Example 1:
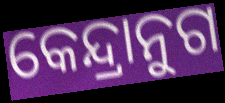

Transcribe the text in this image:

କେନ୍ଦ୍ରାନୁଗ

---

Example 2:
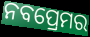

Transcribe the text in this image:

ନବପ୍ରେମର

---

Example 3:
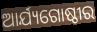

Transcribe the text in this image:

ଆର୍ଯ୍ୟଗୋଷ୍ଠୀର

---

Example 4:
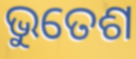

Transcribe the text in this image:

ଭୁତେଶ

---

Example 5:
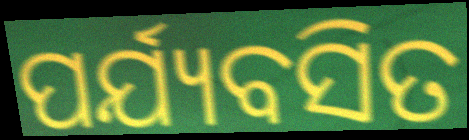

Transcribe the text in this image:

ପର୍ଯ୍ୟବସିତ